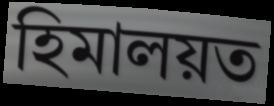
হিমালয়ত